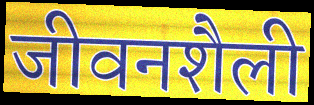
जीवनशैली